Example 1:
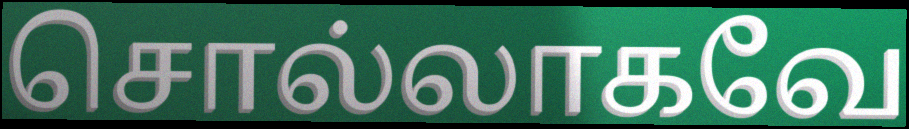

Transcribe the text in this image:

சொல்லாகவே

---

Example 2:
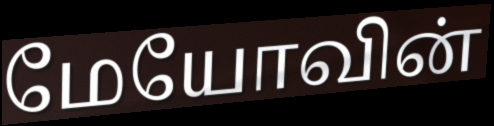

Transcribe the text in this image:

மேயோவின்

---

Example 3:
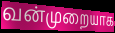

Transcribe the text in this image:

வன்முறையாக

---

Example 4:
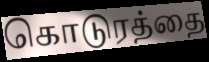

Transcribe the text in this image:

கொடுரத்தை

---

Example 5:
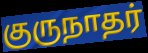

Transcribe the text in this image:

குருநாதர்